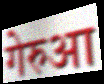
गेरुआ